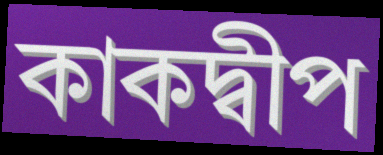
কাকদ্বীপ